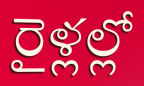
రైళ్లల్లో